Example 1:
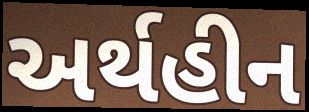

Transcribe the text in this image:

અર્થહીન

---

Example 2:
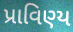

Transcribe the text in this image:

પ્રાવિણ્ય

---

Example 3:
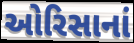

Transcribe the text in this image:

ઓરિસાનાં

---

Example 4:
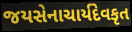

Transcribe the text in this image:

જયસેનાચાર્યદેવકૃત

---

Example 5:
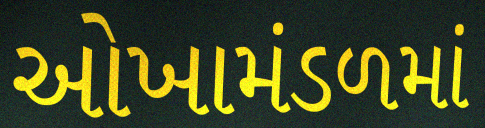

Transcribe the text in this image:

ઓખામંડળમાં